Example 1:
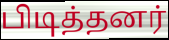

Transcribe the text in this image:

பிடித்தனர்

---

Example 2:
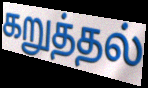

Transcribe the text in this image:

கறுத்தல்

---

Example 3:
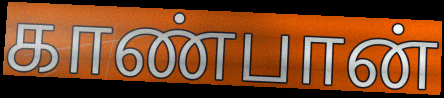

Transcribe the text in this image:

காண்பான்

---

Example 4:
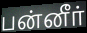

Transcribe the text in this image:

பன்னீர்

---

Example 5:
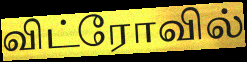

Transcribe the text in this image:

விட்ரோவில்